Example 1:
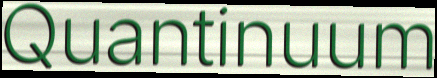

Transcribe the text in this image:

Quantinuum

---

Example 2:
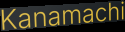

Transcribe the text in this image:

Kanamachi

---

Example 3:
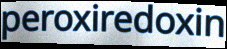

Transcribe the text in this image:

peroxiredoxin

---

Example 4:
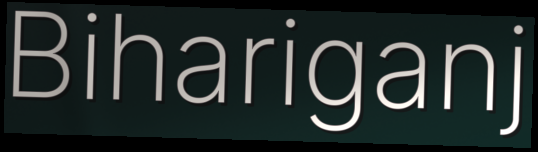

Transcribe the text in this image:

Bihariganj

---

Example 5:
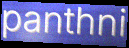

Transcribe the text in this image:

panthni